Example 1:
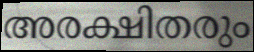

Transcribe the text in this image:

അരക്ഷിതരും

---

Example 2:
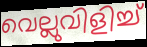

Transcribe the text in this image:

വെല്ലുവിളിച്ച്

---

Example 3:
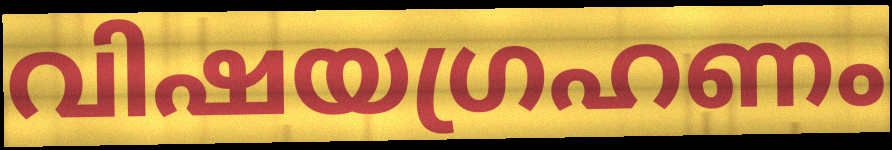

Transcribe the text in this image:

വിഷയഗ്രഹണം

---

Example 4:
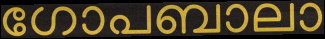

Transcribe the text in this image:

ഗോപബാലാ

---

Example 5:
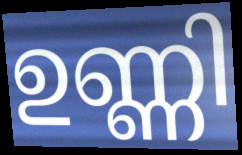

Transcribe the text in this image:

ഉണ്ണി